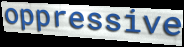
oppressive